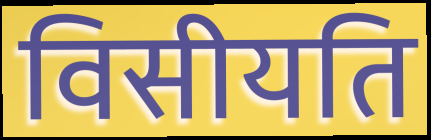
विसीयति